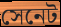
সেনেট